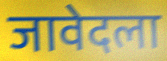
जावेदला